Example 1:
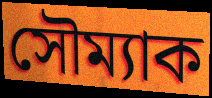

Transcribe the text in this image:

সৌম্যাক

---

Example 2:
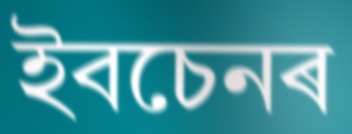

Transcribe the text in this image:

ইবচেনৰ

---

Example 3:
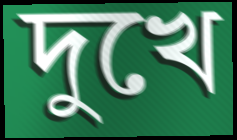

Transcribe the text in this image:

দুখে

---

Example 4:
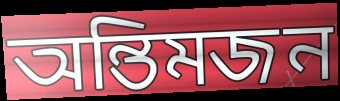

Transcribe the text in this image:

অন্তিমজন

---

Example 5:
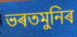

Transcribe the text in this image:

ভৰতমুনিৰ